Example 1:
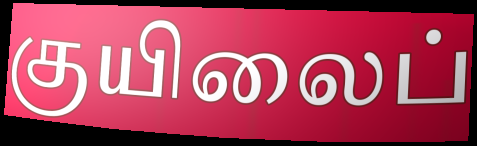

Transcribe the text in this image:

குயிலைப்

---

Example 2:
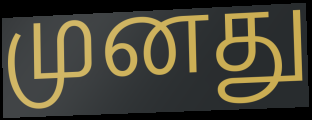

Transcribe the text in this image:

முனது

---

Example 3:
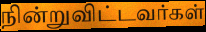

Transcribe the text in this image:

நின்றுவிட்டவர்கள்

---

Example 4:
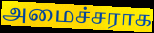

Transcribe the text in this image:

அமைச்சராக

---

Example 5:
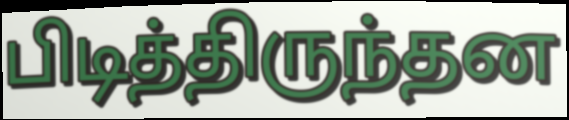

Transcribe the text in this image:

பிடித்திருந்தன